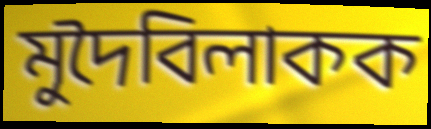
মুদৈবিলাকক